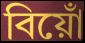
বিয়োঁ